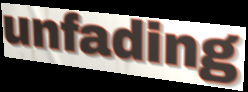
unfading